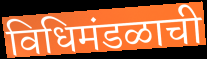
विधिमंडळाची